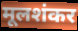
मूलशंकर